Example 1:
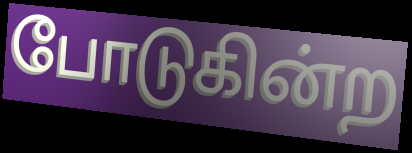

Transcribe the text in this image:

போடுகின்ற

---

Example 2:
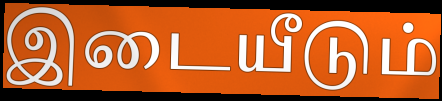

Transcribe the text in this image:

இடையீடும்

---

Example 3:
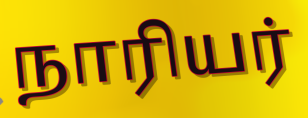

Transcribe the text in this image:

நாரியர்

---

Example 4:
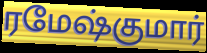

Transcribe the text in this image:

ரமேஷ்குமார்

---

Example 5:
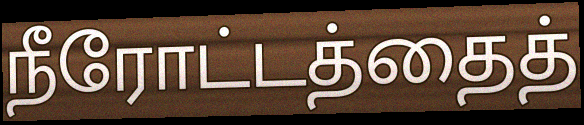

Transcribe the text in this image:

நீரோட்டத்தைத்